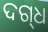
ଦଗ୍‍ଧ